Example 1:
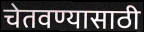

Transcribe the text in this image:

चेतवण्यासाठी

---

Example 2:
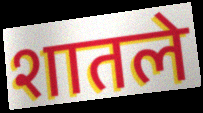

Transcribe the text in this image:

शातले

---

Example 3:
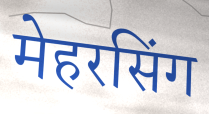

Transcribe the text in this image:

मेहरसिंग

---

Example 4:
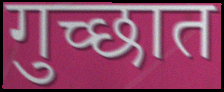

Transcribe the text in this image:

गुच्छात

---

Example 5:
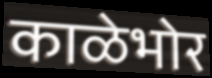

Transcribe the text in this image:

काळेभोर